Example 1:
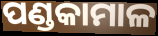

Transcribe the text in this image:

ପଣ୍ଡକାମାଳ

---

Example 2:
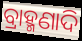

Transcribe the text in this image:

ବ୍ରାହ୍ମଣାଦି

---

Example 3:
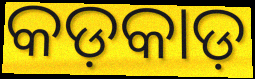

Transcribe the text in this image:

କଡ଼କାଡ଼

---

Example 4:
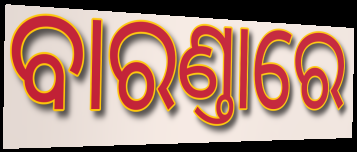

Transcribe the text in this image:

ବାରଣ୍ତାରେ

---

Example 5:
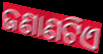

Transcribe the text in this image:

ଜଣାଣଟିଏ